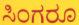
ಸಿಂಗರೂ